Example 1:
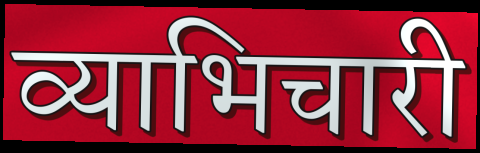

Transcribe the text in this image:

व्याभिचारी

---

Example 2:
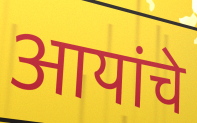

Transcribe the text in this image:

आयांचे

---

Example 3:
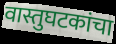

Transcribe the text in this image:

वास्तुघटकांचा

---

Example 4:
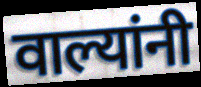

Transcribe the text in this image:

वाल्यांनी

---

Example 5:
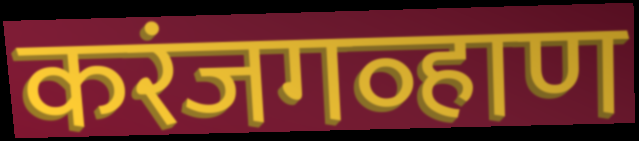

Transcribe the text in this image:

करंजगव्हाण